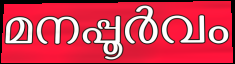
മനപ്പൂർവം